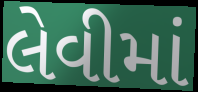
લેવીમાં